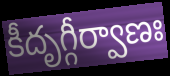
కీదృగ్గీర్వాణః